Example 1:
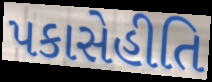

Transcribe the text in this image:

પકાસેહીતિ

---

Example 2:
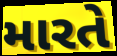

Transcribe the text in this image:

મારતે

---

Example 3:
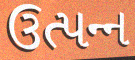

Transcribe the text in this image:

ઉત્પન્‍ન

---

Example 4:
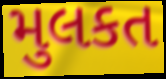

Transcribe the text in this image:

મુલકત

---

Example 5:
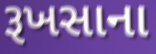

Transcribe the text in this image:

રૂખસાના